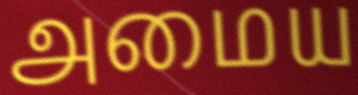
அமைய